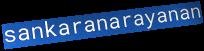
sankaranarayanan